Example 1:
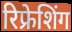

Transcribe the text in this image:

रिफ्रेशिंग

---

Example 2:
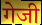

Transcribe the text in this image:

गेजी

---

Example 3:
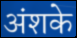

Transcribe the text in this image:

अंशके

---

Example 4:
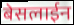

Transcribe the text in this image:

बेसलाईन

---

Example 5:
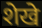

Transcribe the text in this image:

शेखे